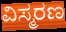
ವಿಸ್ಮರಣ